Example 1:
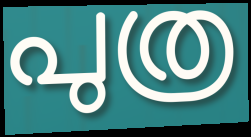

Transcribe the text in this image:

പുത്ര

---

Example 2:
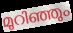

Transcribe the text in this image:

മുറിഞ്ഞും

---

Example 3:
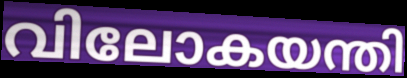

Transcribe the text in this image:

വിലോകയന്തി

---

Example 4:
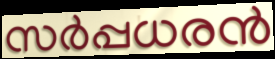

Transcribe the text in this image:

സർപ്പധരൻ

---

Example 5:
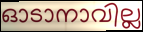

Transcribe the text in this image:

ഓടാനാവില്ല